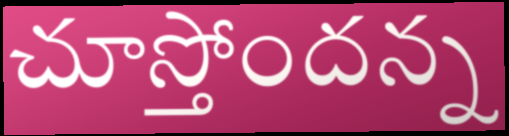
చూస్తోందన్న